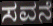
ಸವನೆ